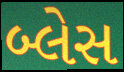
બ્લેસ